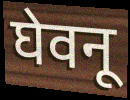
घेवनू